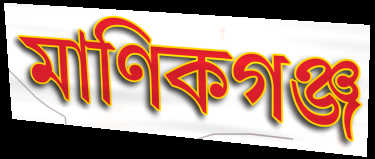
মাণিকগঞ্জ